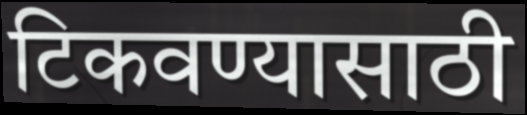
टिकवण्यासाठी